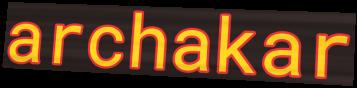
archakar